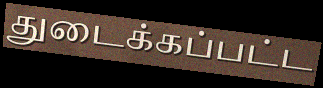
துடைக்கப்பட்ட